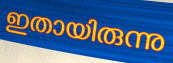
ഇതായിരുന്നു